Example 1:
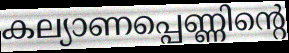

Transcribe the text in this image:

കല്യാണപ്പെണ്ണിന്റെ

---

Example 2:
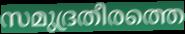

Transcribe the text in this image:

സമുദ്രതീരത്തെ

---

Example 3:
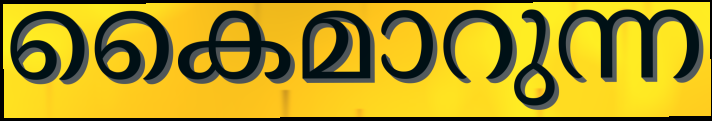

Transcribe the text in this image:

കൈമാറുന്ന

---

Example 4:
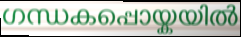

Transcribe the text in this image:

ഗന്ധകപ്പൊയ്കയിൽ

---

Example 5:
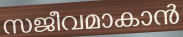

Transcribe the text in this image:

സജീവമാകാൻ